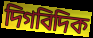
দিগবিদিক